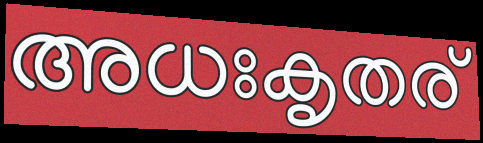
അധഃകൃതര്